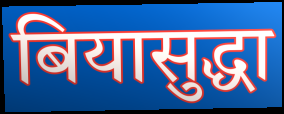
बियासुद्धा